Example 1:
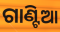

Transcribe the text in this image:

ଗାଣ୍ଟିଆ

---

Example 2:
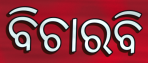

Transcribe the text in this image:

ବିଚାରବି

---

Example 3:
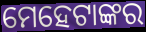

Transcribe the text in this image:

ମେହେଟାଙ୍କର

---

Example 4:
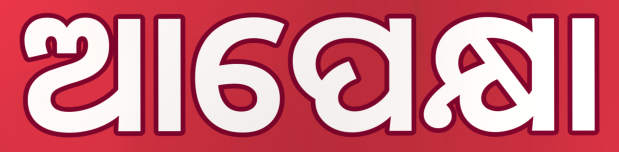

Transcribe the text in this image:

ଆପେକ୍ଷା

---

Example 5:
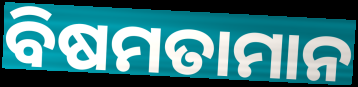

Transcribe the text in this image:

ବିଷମତାମାନ